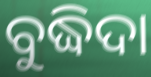
ବୁଦ୍ଧିଦା